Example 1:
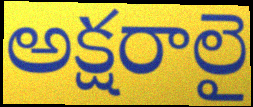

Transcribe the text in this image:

అక్షరాలై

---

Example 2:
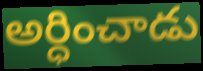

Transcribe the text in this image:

అర్ధించాడు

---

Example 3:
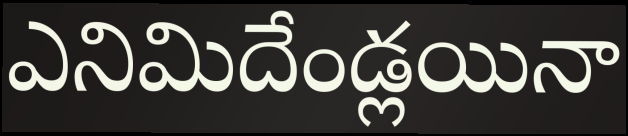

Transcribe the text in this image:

ఎనిమిదేండ్లయినా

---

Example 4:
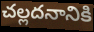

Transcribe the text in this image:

చల్లదనానికి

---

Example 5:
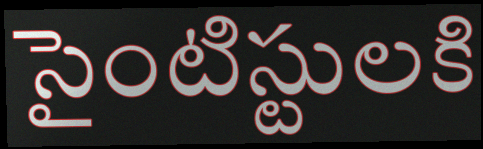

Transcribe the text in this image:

సైంటిస్టులకి